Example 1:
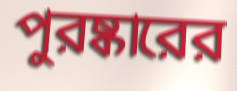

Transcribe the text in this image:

পুরষ্কারের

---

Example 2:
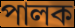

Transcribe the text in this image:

পালক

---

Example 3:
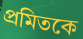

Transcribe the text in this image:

প্রমিতকে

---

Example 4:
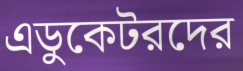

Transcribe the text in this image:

এডুকেটরদের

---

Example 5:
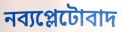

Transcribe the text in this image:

নব্যপ্লেটোবাদ